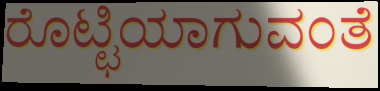
ರೊಟ್ಟಿಯಾಗುವಂತೆ